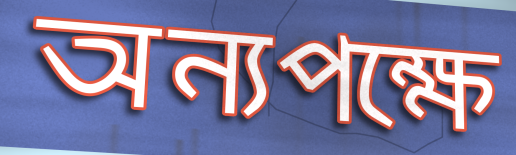
অন্যপক্ষে